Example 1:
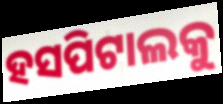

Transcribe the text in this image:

ହସପିଟାଲକୁ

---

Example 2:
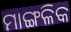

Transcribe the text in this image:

ମାଙ୍ଗଳିକ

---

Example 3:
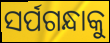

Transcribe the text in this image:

ସର୍ପଗନ୍ଧାକୁ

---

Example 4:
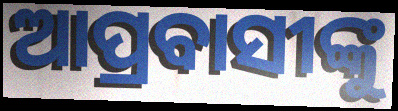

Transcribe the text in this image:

ଆପ୍ରବାସୀଙ୍କୁ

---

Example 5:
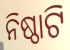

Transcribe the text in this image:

ନିଷ୍ଠାଟି